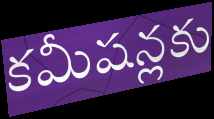
కమీషన్లకు